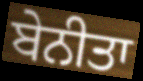
ਬੇਨੀਤਾ